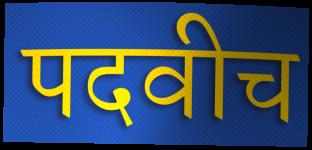
पदवीच